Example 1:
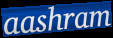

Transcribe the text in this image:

aashram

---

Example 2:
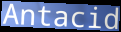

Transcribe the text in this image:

Antacid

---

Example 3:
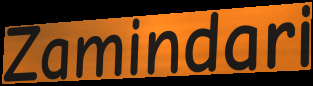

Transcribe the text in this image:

Zamindari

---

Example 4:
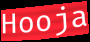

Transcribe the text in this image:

Hooja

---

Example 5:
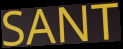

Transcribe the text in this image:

SANT